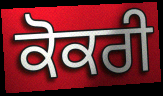
ਕੋਕਰੀ